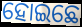
ହୋଇଛେ